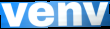
venv